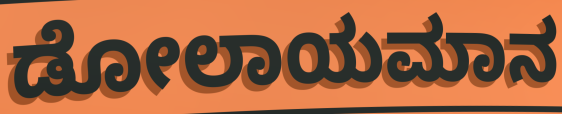
ಡೋಲಾಯಮಾನ